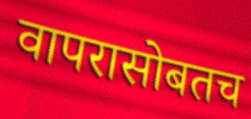
वापरासोबतच